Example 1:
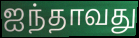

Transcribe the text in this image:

ஐந்தாவது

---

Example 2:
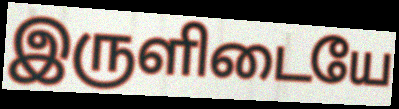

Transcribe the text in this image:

இருளிடையே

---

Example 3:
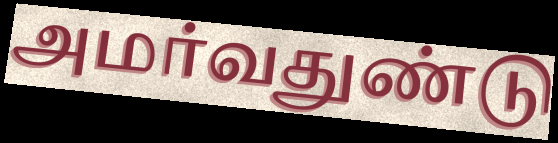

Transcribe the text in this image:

அமர்வதுண்டு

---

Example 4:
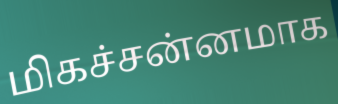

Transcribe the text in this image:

மிகச்சன்னமாக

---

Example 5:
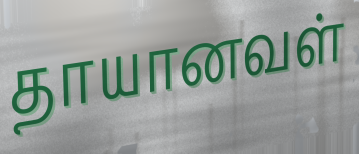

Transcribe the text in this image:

தாயானவள்